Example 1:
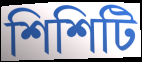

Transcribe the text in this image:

শিশিটি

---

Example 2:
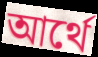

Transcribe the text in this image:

আর্থে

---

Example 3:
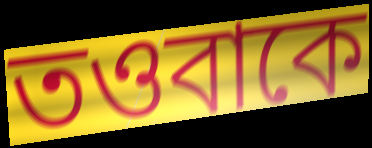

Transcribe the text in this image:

তওবাকে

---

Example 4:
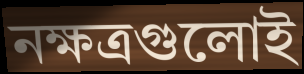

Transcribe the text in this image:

নক্ষত্রগুলোই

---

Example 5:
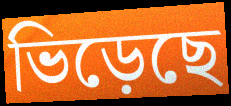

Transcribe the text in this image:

ভিড়েছে